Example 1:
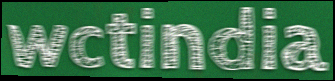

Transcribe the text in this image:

wctindia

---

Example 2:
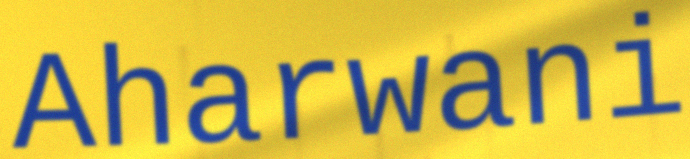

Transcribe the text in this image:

Aharwani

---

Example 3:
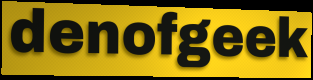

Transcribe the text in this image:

denofgeek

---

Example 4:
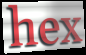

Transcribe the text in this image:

hex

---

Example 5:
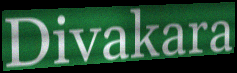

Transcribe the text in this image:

Divakara